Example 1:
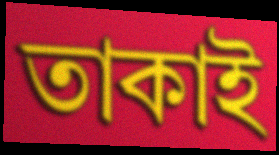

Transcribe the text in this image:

তাকাই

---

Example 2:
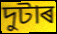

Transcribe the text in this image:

দুটাৰ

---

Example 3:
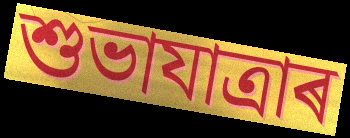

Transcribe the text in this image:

শুভাযাত্ৰাৰ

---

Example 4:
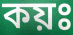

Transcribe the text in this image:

কয়ঃ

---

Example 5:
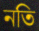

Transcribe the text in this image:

নতি